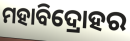
ମହାବିଦ୍ରୋହର